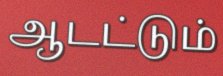
ஆடட்டும்